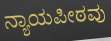
ನ್ಯಾಯಪೀಠವು